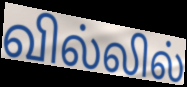
வில்லில்